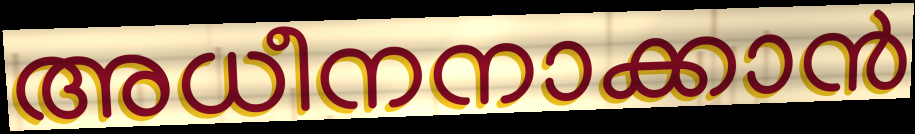
അധീനനാക്കാൻ